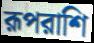
রূপরাশি